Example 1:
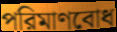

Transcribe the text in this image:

পরিমাণবোধ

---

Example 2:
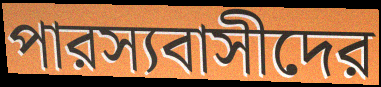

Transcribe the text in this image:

পারস্যবাসীদের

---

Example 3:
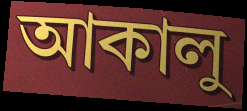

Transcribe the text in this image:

আকালু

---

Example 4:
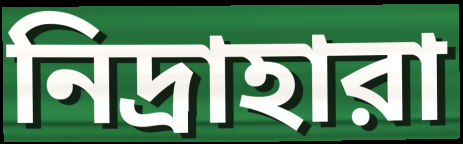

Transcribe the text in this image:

নিদ্রাহারা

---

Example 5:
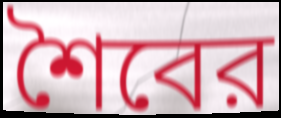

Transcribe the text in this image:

শৈবের